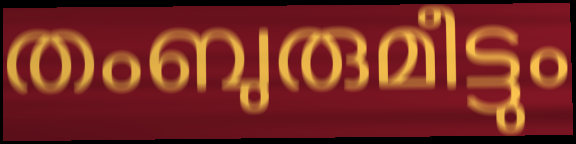
തംബുരുമീട്ടും